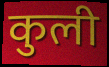
कुली